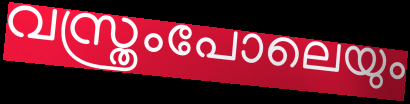
വസ്ത്രംപോലെയും